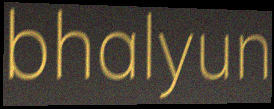
bhalyun